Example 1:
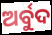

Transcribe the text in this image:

ଅର୍ବୁଦ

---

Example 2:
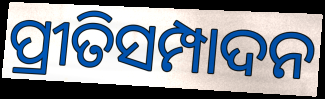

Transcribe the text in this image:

ପ୍ରୀତିସମ୍ପାଦନ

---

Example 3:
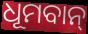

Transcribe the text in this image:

ଧୂମବାନ୍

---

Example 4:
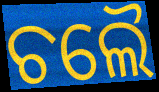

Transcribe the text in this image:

ଚଲୈ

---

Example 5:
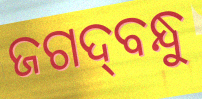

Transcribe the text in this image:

ଜଗଦ୍‌ବନ୍ଧୁ